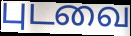
புடவை